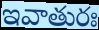
ఇవాతురః